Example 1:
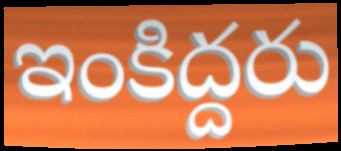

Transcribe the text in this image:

ఇంకిద్దరు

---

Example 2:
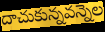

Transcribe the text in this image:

దాచుకున్నవన్నెల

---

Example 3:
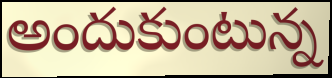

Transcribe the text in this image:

అందుకుంటున్న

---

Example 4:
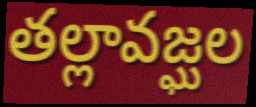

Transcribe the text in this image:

తల్లావజ్ఘల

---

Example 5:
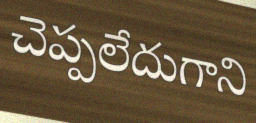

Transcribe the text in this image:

చెప్పలేదుగాని